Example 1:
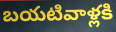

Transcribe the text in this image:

బయటివాళ్లకి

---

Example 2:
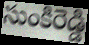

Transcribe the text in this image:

సుంకిరెడ్డి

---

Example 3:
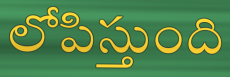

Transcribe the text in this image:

లోపిస్తుంది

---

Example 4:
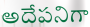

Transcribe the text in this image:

అదేపనిగా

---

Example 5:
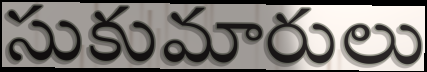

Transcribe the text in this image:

సుకుమారులు